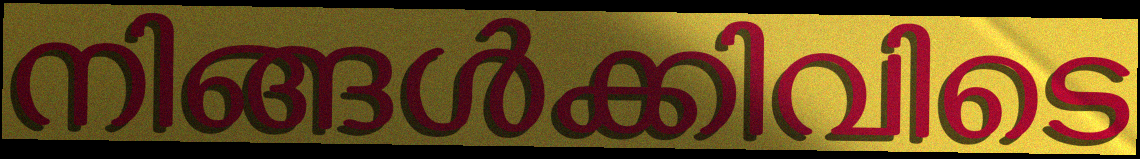
നിങ്ങൾക്കിവിടെ